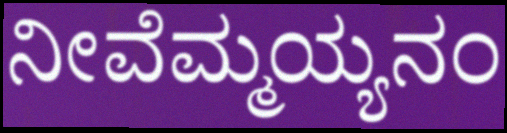
ನೀವೆಮ್ಮಯ್ಯನಂ